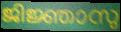
ജിജ്ഞാസു